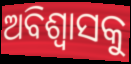
ଅବିଶ୍ୱାସକୁ